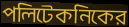
পলিটেকনিকের